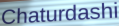
Chaturdashi